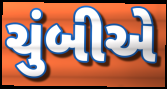
ચુંબીએ